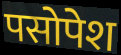
पसोपेश